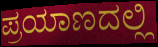
ಪ್ರಯಾಣದಲ್ಲಿ